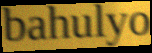
bahulyo